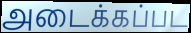
அடைக்கப்பட